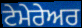
ਟੇਮੇਰੇਅਰ